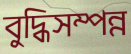
বুদ্ধিসম্পন্ন